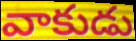
వాకుడు